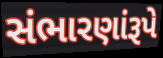
સંભારણાંરૂપે